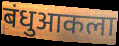
बंधुआकला